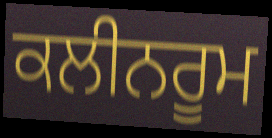
ਕਲੀਨਰੂਮ